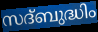
സദ്ബുദ്ധിം